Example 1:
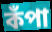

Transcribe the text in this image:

কঁপা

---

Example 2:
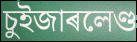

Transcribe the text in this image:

চুইজাৰলেণ্ড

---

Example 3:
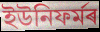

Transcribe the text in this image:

ইউনিফৰ্মৰ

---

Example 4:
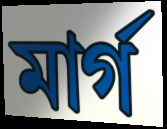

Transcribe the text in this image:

মাৰ্গ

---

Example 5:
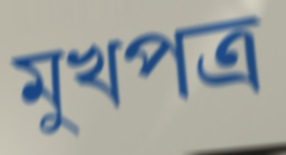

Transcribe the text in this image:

মুখপত্ৰ